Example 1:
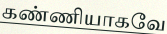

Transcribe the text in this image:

கண்ணியாகவே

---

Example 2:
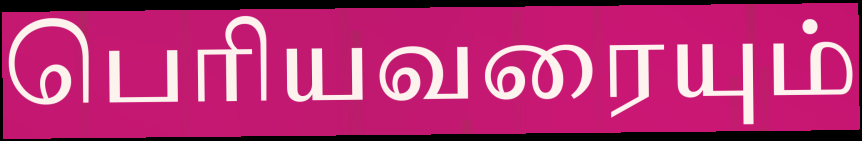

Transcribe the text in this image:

பெரியவரையும்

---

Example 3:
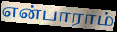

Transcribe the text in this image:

என்பாராம்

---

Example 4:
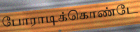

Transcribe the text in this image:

போராடிக்கொண்டே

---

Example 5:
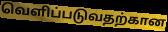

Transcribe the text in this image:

வெளிப்படுவதற்கான